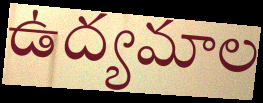
ఉద్యమాల